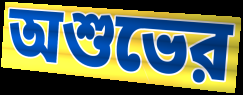
অশুভের